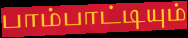
பாம்பாட்டியும்